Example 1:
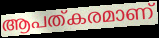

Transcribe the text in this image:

ആപത്കരമാണ്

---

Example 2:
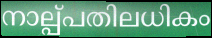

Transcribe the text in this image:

നാല്പ്പതിലധികം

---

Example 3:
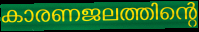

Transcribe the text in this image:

കാരണജലത്തിന്റെ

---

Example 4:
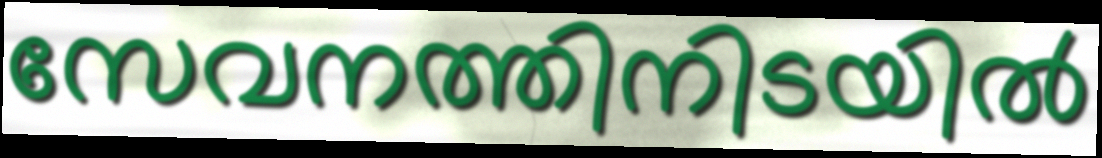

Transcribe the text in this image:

സേവനത്തിനിടയിൽ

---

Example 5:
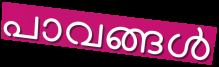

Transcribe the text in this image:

പാവങ്ങൾ